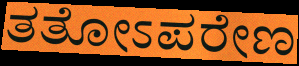
ತತೋಽಪರೇಣ